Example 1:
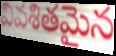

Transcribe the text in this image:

వివశితమైన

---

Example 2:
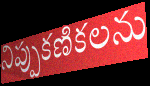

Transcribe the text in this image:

నిప్పుకణికలను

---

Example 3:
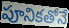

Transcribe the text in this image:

పూనికతోనే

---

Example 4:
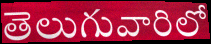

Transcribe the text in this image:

తెలుగువారిలో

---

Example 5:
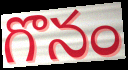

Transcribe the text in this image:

గొనం